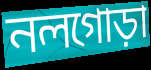
নলগোড়া